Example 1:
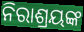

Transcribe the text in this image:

ନିରାଶ୍ରୟଙ୍କ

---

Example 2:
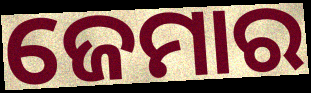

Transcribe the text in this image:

ଜେମାର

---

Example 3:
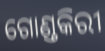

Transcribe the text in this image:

ଗୋଣ୍ଡକିରୀ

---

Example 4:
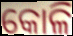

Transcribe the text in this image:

କୋଳି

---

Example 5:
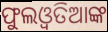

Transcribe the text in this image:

ଫୁଲଓ୍ୱତିଆଙ୍କ